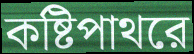
কষ্টিপাথরে